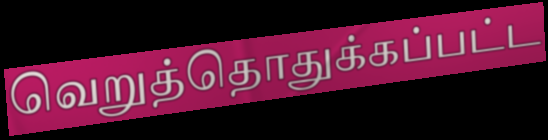
வெறுத்தொதுக்கப்பட்ட